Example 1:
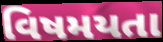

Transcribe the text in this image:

વિષમયતા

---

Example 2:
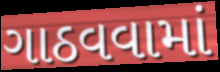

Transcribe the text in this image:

ગાઠવવામાં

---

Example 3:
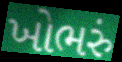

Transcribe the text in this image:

ખોભરું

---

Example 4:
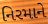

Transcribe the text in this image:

નિરમાને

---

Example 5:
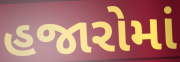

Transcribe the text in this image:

હજારોમાં